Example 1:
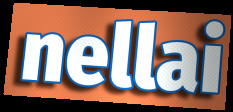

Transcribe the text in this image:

nellai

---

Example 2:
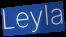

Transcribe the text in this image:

Leyla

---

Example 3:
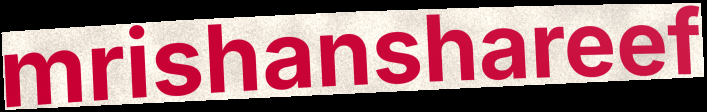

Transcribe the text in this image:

mrishanshareef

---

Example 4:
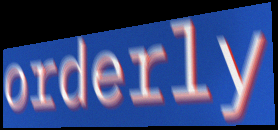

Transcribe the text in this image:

orderly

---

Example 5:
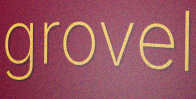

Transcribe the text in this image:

grovel